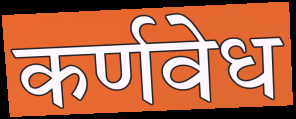
कर्णवेध